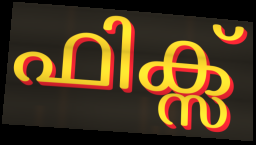
ഫിക്സ്